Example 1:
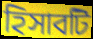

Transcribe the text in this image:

হিসাবটি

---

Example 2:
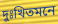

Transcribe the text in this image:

দুঃখিতমনে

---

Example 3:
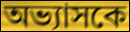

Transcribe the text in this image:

অভ্যাসকে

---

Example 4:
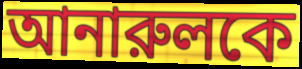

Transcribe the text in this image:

আনারুলকে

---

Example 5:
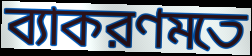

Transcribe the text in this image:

ব্যাকরণমতে